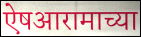
ऐषआरामाच्या